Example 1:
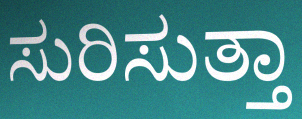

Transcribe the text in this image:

ಸುರಿಸುತ್ತಾ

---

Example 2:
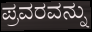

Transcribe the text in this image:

ಪ್ರವರವನ್ನು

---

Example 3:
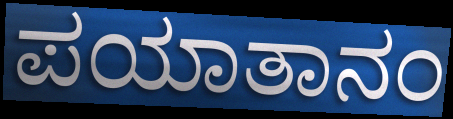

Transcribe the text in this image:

ಪಯಾತಾನಂ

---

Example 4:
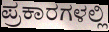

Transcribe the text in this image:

ಪ್ರಕಾರಗಳಲ್ಲಿ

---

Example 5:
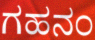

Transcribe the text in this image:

ಗಹನಂ